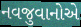
નવજુવાનોએ